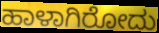
ಹಾಳಾಗಿರೋದು